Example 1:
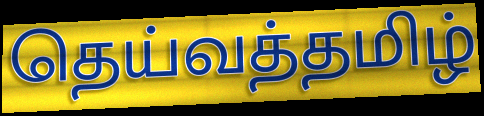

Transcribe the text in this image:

தெய்வத்தமிழ்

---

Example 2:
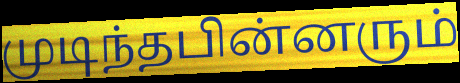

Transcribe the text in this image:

முடிந்தபின்னரும்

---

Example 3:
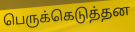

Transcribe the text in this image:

பெருக்கெடுத்தன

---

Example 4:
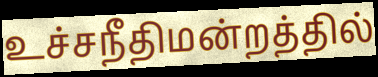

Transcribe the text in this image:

உச்சநீதிமன்றத்தில்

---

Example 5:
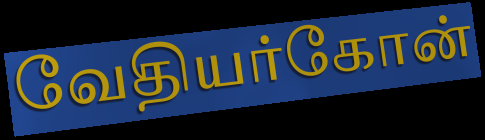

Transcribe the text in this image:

வேதியர்கோன்